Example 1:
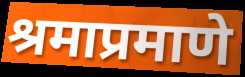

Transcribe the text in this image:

श्रमाप्रमाणे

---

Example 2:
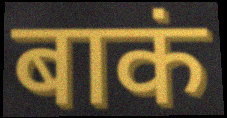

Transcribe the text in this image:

बाकं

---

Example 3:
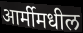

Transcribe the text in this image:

आर्मीमधील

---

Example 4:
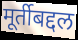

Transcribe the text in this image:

मूर्तीबद्दल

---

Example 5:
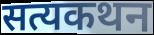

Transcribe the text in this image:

सत्यकथन